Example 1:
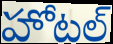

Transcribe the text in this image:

హోటల్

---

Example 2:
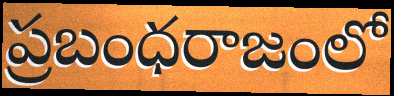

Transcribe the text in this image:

ప్రబంధరాజంలో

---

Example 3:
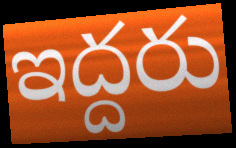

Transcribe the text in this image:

ఇద్దరు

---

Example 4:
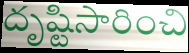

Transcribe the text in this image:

దృష్టిసారించి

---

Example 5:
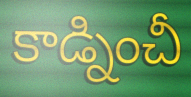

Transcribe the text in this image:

కాడ్నించీ